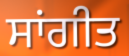
ਸਾਂਗੀਤ